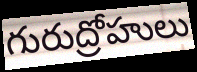
గురుద్రోహులు